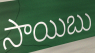
సాయిబు